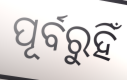
ପୂର୍ବରୁହିଁ